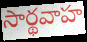
సార్థవాహ